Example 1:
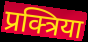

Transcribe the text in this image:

प्रक्त्रिया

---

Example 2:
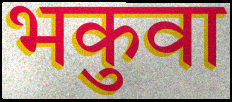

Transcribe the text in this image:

भकुवा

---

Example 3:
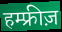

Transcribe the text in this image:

हम्फ्रीज़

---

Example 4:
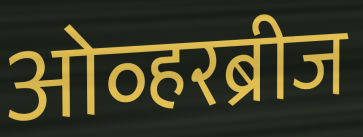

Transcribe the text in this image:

ओव्हरब्रीज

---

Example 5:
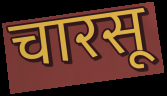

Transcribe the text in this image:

चारसू